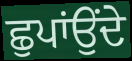
ਛੁਪਾਂਉਂਦੇ